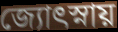
জ্যোৎস্নায়